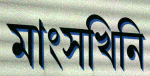
মাংসখিনি